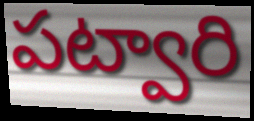
పట్వారి